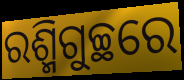
ରଶ୍ମିଗୁଚ୍ଛରେ